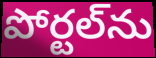
పోర్టల్‌ను